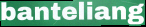
banteliang